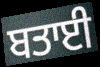
ਬਤਾਈ